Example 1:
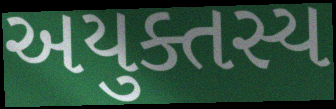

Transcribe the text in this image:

અયુક્તસ્ય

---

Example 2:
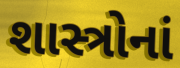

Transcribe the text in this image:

શાસ્ત્રોનાં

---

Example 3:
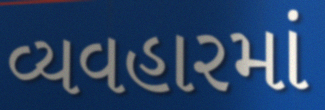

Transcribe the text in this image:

વ્યવહારમાં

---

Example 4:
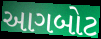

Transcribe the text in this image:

આગબોટ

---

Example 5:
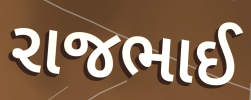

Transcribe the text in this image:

રાજભાઈ